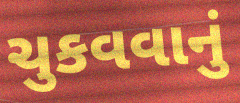
ચુકવવાનું